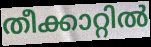
തീക്കാറ്റിൽ